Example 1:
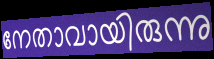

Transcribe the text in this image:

നേതാവായിരുന്നു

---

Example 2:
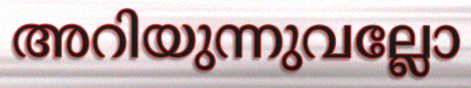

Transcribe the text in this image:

അറിയുന്നുവല്ലോ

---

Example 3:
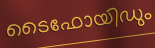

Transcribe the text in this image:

ടൈഫോയിഡും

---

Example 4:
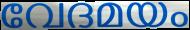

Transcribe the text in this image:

വേദമയം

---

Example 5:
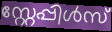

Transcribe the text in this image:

സ്റ്റേപ്പിൾസ്